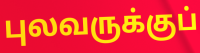
புலவருக்குப்